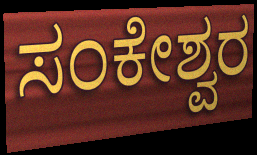
ಸಂಕೇಶ್ವರ